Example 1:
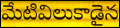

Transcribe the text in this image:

మేటివిలుకాడైన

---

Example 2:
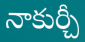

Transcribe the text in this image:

నాకుర్చీ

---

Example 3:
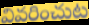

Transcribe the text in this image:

వివరించుట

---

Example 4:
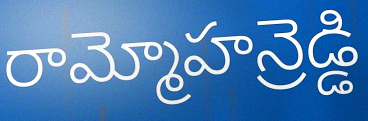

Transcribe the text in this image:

రామ్మోహన్రెడ్డి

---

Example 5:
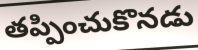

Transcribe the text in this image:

తప్పించుకొనడు